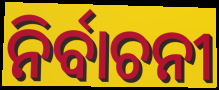
ନିର୍ବାଚନୀ